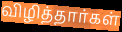
விழித்தார்கள்